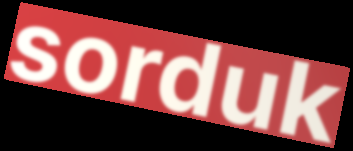
sorduk